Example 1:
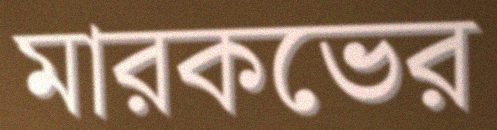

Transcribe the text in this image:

মারকভের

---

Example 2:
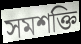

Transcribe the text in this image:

সমশক্তি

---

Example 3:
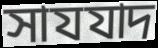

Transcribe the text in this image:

সাযযাদ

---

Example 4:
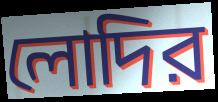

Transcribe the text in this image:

লোদির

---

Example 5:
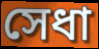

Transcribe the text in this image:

সেধা